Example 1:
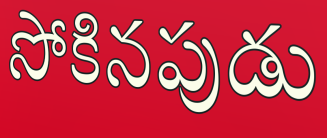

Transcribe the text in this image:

సోకినపుడు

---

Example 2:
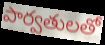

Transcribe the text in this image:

పార్వతులతో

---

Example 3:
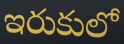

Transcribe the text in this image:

ఇరుకులో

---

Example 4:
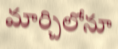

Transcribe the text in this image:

మార్చిలోనూ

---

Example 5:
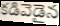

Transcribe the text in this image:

కడివెడైన